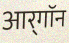
आर्‌गॉन